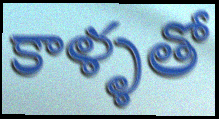
కాళ్ళతో